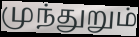
முந்துறும்